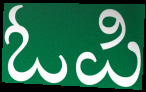
ಓಪಿ